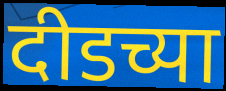
दीडच्या